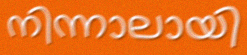
നിന്നാലായി